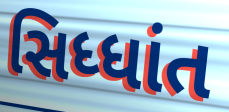
સિધ્ધાંત